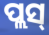
ପ୍ଲସ୍